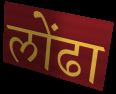
लोंढा